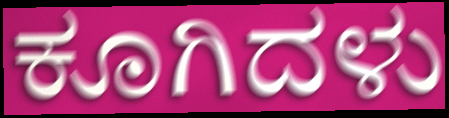
ಕೂಗಿದಳು